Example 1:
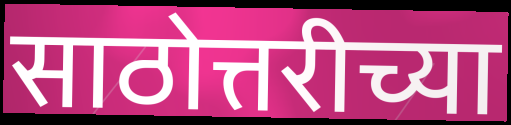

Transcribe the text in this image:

साठोत्तरीच्या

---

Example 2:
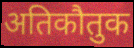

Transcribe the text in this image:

अतिकौतुक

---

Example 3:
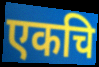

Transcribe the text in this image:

एकचि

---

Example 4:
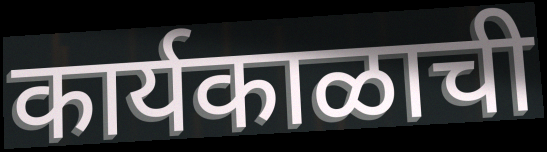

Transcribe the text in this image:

कार्यकाळाची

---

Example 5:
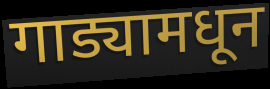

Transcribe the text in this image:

गाड्यामधून